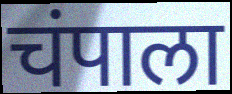
चंपाला